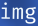
img